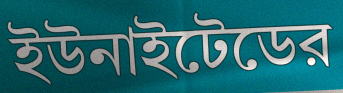
ইউনাইটেডের